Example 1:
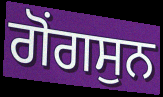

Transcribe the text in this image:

ਗੋਂਗਸੁਨ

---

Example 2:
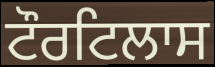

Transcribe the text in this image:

ਟੌਰਟਿਲਾਸ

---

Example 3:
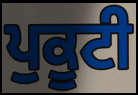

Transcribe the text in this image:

ਪੁਕੂਟੀ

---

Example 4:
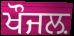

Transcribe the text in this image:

ਖੌਜਲ਼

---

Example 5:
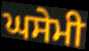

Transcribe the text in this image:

ਘਸੇਮੀ